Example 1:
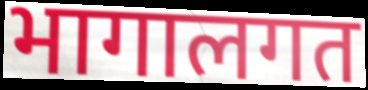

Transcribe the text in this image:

भागालगत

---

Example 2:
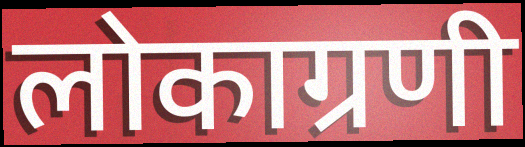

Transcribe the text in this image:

लोकाग्रणी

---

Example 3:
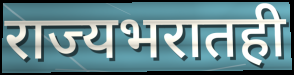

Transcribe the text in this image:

राज्यभरातही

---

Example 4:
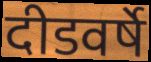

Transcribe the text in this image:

दीडवर्षे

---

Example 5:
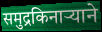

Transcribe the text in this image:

समुद्रकिनाऱ्याने